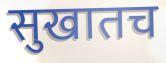
सुखातच